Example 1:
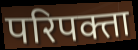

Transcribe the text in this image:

परिपक्ता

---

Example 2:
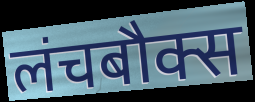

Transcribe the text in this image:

लंचबौक्स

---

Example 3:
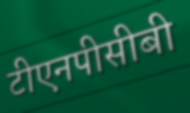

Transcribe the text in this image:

टीएनपीसीबी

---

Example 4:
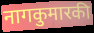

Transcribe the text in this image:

नागकुमारकी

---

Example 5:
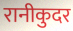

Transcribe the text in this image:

रानीकुदर